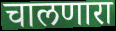
चालणारा